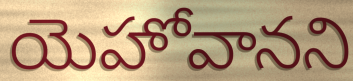
యెహోవానని